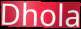
Dhola